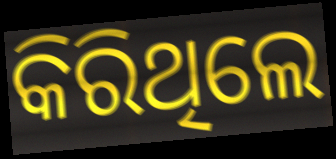
କିରିଥିଲେ